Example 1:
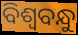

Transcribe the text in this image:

ବିଶ୍ୱବନ୍ଧୁ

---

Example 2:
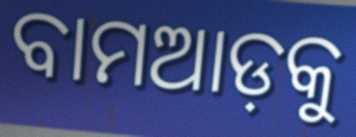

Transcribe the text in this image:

ବାମଆଡ଼କୁ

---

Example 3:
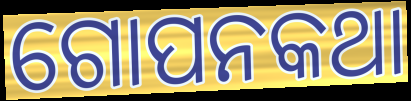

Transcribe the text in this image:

ଗୋପନକଥା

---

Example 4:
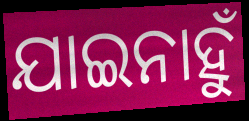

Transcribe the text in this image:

ଯାଇନାହୁଁ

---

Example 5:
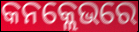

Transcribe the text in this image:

କନକ୍ଲେଭରେ